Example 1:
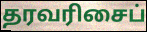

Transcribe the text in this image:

தரவரிசைப்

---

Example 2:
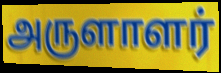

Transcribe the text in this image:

அருளாளர்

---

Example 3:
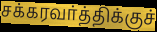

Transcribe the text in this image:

சக்கரவர்த்திக்குச்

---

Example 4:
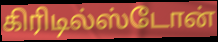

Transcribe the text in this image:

கிரிடில்ஸ்டோன்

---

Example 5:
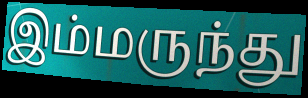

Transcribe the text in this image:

இம்மருந்து